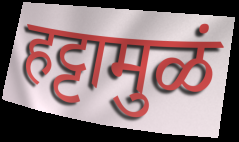
हट्टामुळं